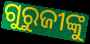
ଗୁରୁଜୀଙ୍କୁ